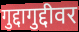
गुद्दागुद्दीवर